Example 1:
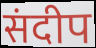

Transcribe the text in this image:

संदीप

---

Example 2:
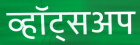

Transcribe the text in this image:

व्हॉट्सअप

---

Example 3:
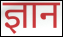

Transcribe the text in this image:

ज्ञान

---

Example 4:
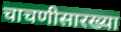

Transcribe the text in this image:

चाचणीसारख्या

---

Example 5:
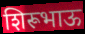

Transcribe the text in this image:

शिरूभाऊ